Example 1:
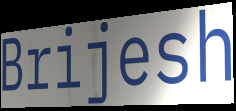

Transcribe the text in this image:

Brijesh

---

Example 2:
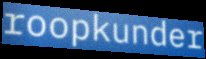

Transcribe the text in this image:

roopkunder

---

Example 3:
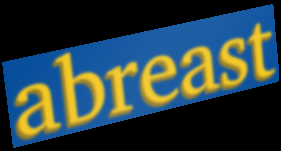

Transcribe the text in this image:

abreast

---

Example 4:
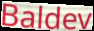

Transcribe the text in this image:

Baldev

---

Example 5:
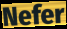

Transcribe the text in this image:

Nefer